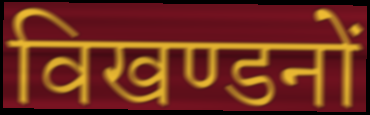
विखण्डनों